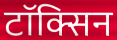
टॉक्सिन